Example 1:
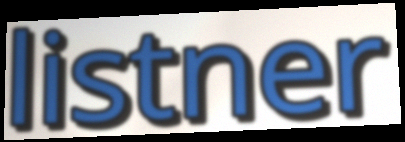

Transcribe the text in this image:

listner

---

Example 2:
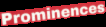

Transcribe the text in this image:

Prominences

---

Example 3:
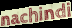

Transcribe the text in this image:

nachindi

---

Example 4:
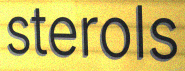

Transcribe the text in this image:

sterols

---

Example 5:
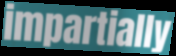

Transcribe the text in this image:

impartially